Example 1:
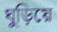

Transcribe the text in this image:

ঘুড়িয়ে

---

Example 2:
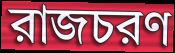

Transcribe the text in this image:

রাজচরণ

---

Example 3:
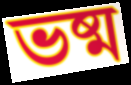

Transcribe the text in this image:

ভষ্ম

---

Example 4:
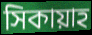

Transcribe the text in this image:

সিকায়াহ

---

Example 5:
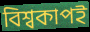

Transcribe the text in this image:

বিশ্বকাপই